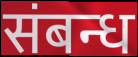
संबन्ध